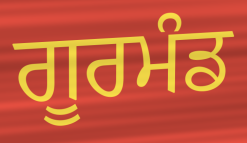
ਗੂਰਮੰਡ